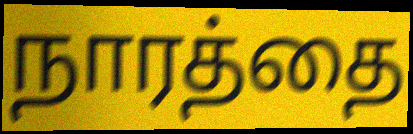
நாரத்தை